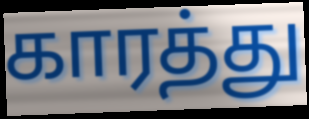
காரத்து